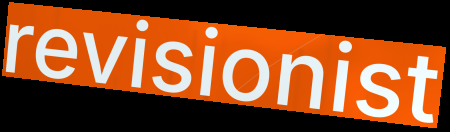
revisionist